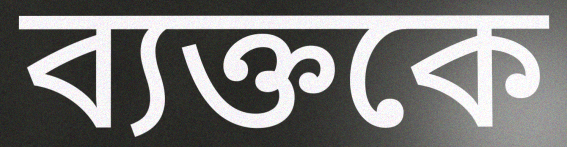
ব্যক্তকে